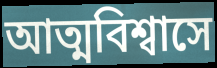
আত্মবিশ্বাসে